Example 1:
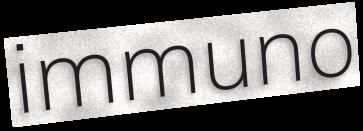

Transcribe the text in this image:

immuno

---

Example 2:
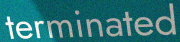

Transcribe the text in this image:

terminated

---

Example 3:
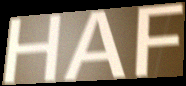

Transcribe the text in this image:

HAF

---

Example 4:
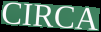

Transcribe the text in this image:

CIRCA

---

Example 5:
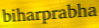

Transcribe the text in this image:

biharprabha